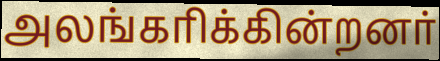
அலங்கரிக்கின்றனர்